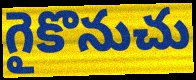
గైకొనుచు